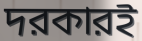
দরকারই